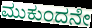
ಮುಕುಂದನೇ